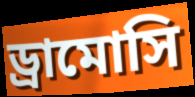
ড্রামোসি